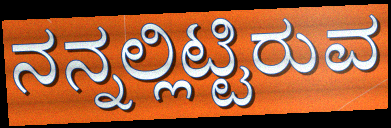
ನನ್ನಲ್ಲಿಟ್ಟಿರುವ